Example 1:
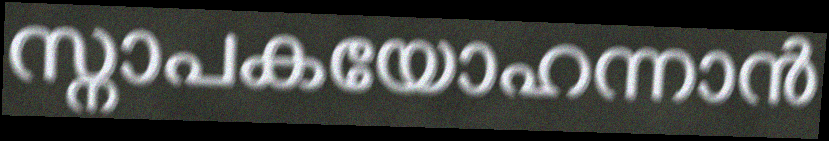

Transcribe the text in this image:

സ്നാപകയോഹന്നാൻ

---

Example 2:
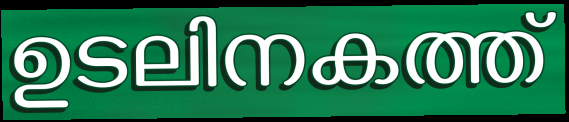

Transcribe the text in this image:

ഉടലിനകത്ത്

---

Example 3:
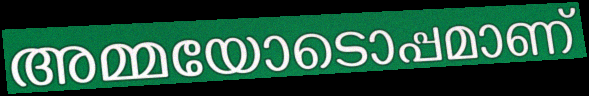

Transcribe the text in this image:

അമ്മയോടൊപ്പമാണ്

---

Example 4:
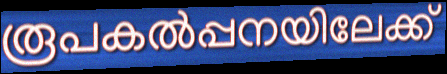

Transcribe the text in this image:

രൂപകൽപ്പനയിലേക്ക്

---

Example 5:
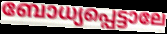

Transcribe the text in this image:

ബോധ്യപ്പെട്ടാലേ